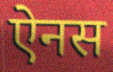
ऐनस